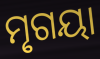
ମୃଗୟା